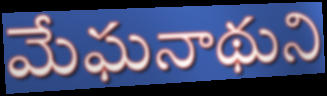
మేఘనాథుని